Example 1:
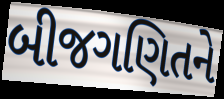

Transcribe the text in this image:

બીજગણિતને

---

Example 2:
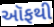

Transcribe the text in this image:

ઑફથી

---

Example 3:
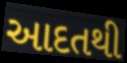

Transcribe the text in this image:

આદતથી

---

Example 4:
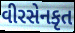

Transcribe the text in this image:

વીરસેનકૃત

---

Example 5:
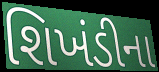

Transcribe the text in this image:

શિખંડીના